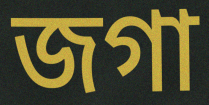
জগা